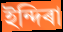
ইন্দিৰা